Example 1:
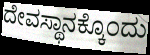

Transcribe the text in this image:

ದೇವಸ್ಥಾನಕ್ಕೊಂದು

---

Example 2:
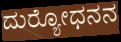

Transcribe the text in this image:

ದುರ‍್ಯೋಧನನ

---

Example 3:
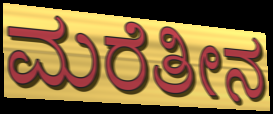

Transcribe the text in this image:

ಮರೆತೀನ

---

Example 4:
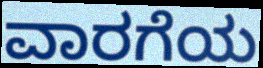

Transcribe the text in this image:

ವಾರಗೆಯ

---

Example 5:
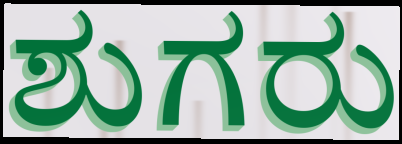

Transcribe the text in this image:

ಶುಗರು